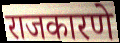
राजकारणे